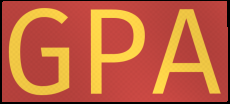
GPA